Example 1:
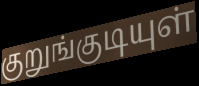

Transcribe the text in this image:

குறுங்குடியுள்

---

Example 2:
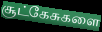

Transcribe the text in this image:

சூட்கேசுகளை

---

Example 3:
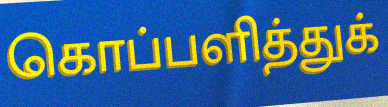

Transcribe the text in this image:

கொப்பளித்துக்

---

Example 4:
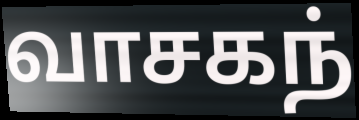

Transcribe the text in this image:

வாசகந்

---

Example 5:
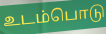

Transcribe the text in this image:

உடம்பொடு